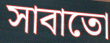
সাবাতো